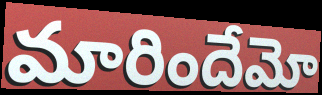
మారిందేమో